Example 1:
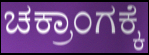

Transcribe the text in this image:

ಚಕ್ರಾಂಗಕ್ಕೆ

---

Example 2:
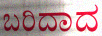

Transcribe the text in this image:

ಬರಿದಾದ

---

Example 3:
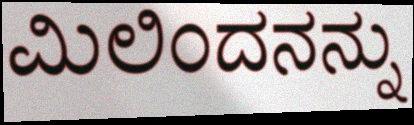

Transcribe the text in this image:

ಮಿಲಿಂದನನ್ನು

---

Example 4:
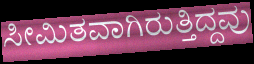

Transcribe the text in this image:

ಸೀಮಿತವಾಗಿರುತ್ತಿದ್ದವು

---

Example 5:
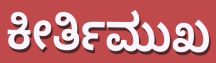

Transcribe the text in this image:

ಕೀರ್ತಿಮುಖ